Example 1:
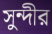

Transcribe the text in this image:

সুন্দীর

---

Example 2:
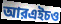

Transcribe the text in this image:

আরএইচও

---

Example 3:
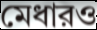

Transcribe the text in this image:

মেধারও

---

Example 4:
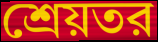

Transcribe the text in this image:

শ্রেয়তর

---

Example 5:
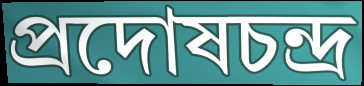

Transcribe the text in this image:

প্রদোষচন্দ্র